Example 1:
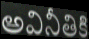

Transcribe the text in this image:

అవినీతికి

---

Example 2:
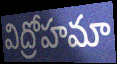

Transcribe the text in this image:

విద్రోహమా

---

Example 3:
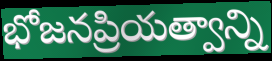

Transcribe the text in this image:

భోజనప్రియత్వాన్ని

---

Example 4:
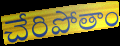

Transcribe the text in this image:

చేరిపోతాం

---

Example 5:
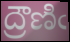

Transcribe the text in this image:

ద్రౌణిఁ